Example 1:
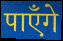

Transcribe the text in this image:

पाऍंगे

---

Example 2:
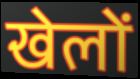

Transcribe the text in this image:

खेलों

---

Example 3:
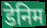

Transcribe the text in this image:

डेनिम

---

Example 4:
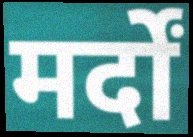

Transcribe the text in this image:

मर्दों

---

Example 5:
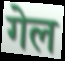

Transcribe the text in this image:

गेल